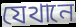
যেথানে